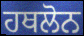
ਹਥਲੋਨ